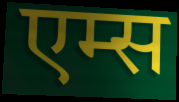
एम्‍स